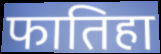
फातिहा